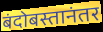
बंदोबस्तानंतर